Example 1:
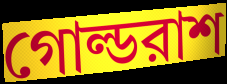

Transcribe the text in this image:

গোল্ডরাশ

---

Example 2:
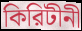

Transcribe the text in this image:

কিরিটীনী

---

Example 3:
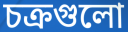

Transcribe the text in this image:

চক্রগুলো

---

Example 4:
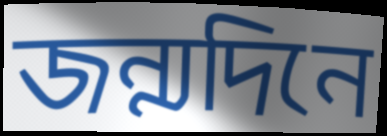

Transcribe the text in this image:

জন্মদিনে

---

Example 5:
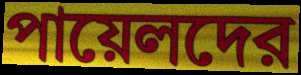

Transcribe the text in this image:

পায়েলদের